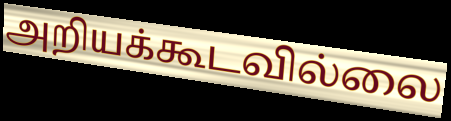
அறியக்கூடவில்லை